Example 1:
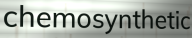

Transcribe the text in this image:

chemosynthetic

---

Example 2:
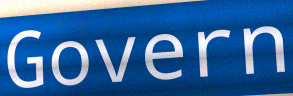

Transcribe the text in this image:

Govern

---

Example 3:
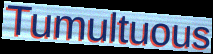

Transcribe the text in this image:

Tumultuous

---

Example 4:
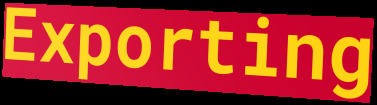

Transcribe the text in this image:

Exporting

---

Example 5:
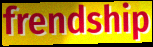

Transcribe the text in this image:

frendship